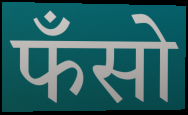
फँसो